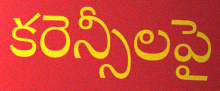
కరెన్సీలపై